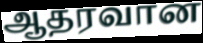
ஆதரவான